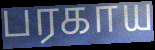
பரகாய